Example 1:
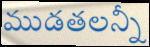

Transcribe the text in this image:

ముడతలన్నీ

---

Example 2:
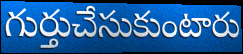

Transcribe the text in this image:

గుర్తుచేసుకుంటారు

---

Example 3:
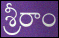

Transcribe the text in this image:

శ్రీరాం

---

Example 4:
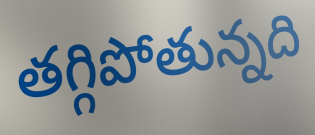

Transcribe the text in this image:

తగ్గిపోతున్నది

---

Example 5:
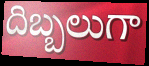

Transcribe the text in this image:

దిబ్బలుగా